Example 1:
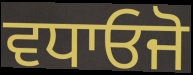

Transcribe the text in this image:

ਵਧਾਓਜੋ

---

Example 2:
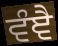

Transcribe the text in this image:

ਵੰਞੈ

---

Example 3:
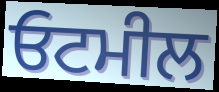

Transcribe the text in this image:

ਓਟਮੀਲ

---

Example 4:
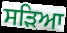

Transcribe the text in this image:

ਸੜਿਆ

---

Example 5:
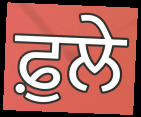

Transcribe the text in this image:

ਫ਼ੁਲੇ